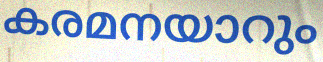
കരമനയാറും